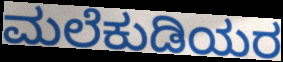
ಮಲೆಕುಡಿಯರ